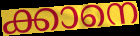
ക്കാനെ